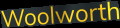
Woolworth